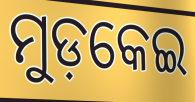
ମୁଡ଼କେଇ